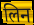
लिन